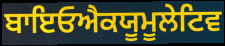
ਬਾਇਓਐਕਯੂਮੂਲੇਟਿਵ